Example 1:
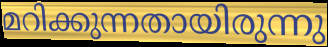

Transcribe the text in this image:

മറിക്കുന്നതായിരുന്നു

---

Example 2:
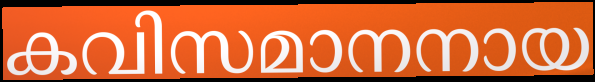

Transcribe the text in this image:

കവിസമാനനായ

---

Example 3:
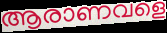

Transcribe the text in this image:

ആരാണവളെ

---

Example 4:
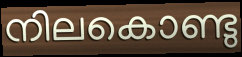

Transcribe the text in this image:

നിലകൊണ്ടു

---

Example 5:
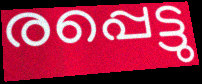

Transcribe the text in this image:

രപ്പെട്ടു